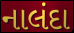
નાલંદા